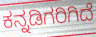
ಕನ್ನಡಿಗರಿಗಿದೆ